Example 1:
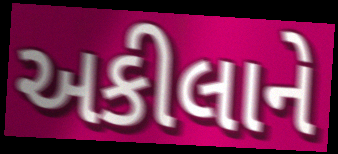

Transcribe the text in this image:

અકીલાને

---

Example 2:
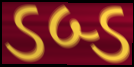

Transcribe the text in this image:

ડબ્ડ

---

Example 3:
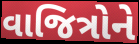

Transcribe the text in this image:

વાજિત્રોને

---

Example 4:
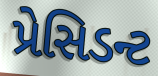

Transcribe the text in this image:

પ્રેસિડન્ટ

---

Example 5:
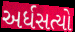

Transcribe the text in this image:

અર્ધસત્યો